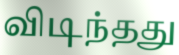
விடிந்தது